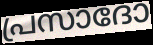
പ്രസാദോ